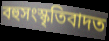
বহুসংস্কৃতিবাদত